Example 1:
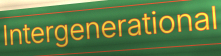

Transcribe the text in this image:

Intergenerational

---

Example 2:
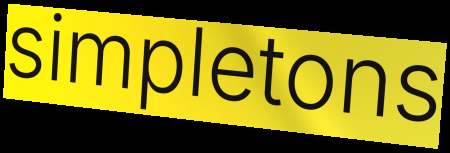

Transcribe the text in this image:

simpletons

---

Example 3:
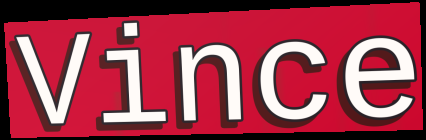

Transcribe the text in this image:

Vince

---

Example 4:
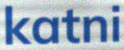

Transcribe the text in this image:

katni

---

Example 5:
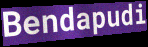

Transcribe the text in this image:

Bendapudi